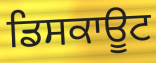
ਡਿਸਕਾਊਟ